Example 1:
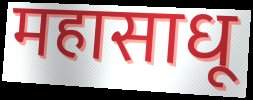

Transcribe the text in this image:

महासाधू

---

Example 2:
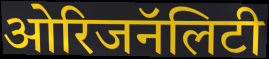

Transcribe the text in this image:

ओरिजनॅलिटी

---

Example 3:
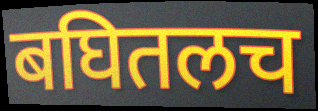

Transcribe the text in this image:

बघितलच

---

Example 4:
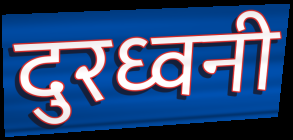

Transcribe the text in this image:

दुरध्वनी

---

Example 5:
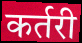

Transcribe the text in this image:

कर्तरी